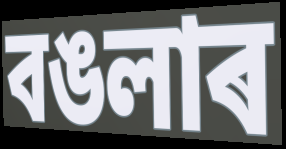
বঙলাৰ